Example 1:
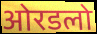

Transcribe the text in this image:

ओरडलो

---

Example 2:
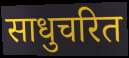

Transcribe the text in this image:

साधुचरित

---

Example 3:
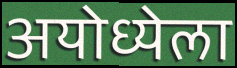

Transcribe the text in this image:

अयोध्येला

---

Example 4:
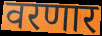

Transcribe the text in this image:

वरणार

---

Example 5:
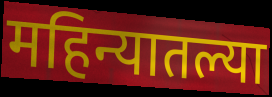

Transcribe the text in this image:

महिन्यातल्या